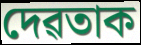
দেৱতাক